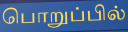
பொறுப்பில்